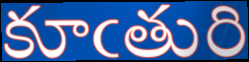
కూఁతురి